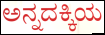
ಅನ್ನದಕ್ಕಿಯ